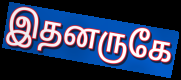
இதனருகே